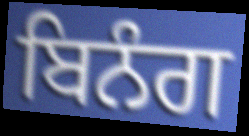
ਬਿਨੰਗ